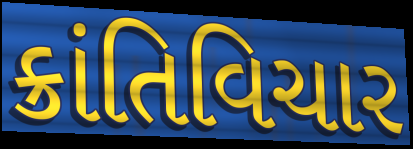
ક્રાંતિવિચાર